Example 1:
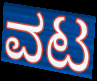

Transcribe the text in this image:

ವಟ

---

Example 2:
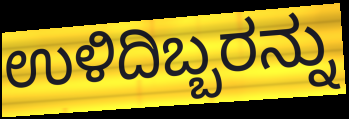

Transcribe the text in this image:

ಉಳಿದಿಬ್ಬರನ್ನು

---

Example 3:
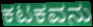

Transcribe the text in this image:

ಕಟಕವನು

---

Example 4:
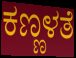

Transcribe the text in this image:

ಕಣ್ಣಳತೆ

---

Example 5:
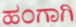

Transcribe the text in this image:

ಹಂಗಾಗಿ